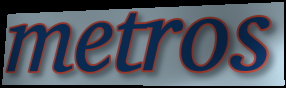
metros